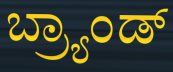
ಬ್ರ್ಯಾಂಡ್